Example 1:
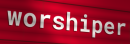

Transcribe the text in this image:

worshiper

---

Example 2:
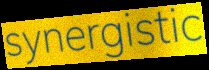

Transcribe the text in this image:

synergistic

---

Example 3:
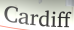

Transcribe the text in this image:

Cardiff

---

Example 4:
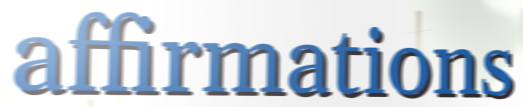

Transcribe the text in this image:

affirmations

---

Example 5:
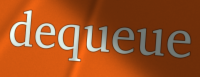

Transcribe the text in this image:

dequeue